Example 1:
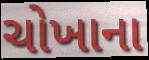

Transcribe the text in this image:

ચોખાના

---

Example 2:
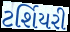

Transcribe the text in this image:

ટર્શિયરી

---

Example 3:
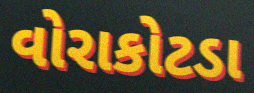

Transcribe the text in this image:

વોરાકોટડા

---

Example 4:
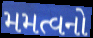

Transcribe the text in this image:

મમત્વનો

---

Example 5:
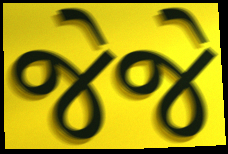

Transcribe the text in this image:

જેજે